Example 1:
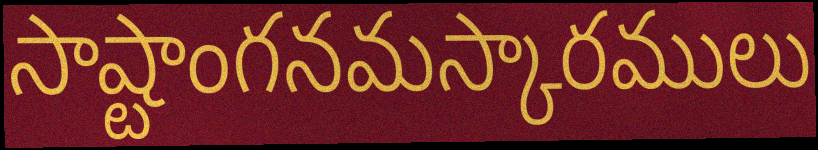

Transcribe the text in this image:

సాష్టాంగనమస్కారములు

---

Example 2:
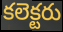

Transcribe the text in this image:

కలెక్టరు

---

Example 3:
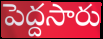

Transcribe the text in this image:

పెద్దసారు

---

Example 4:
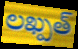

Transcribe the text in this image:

లఖ్పత్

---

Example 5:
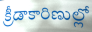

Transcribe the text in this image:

క్రీడాకారిణుల్లో